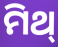
ମିଥ୍